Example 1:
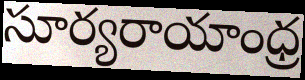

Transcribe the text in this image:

సూర్యరాయాంధ్ర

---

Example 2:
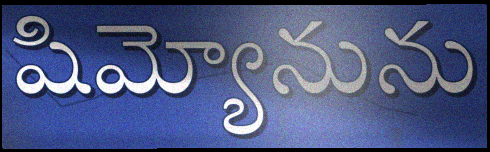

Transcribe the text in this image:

షిమ్యోనును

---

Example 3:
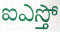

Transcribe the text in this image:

ఐఎస్తో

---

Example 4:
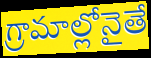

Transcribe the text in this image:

గ్రామాల్లోనైతే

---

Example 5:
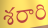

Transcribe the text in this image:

శరారి